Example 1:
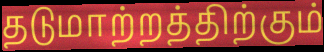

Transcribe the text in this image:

தடுமாற்றத்திற்கும்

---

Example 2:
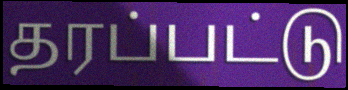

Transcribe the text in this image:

தரப்பட்டு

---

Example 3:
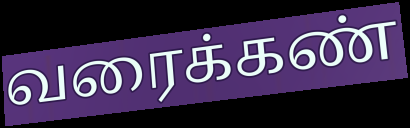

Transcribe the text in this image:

வரைக்கண்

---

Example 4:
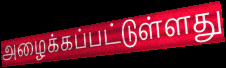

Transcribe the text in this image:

அழைக்கப்பட்டுள்ளது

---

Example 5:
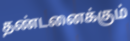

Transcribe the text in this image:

தண்டனைக்கும்